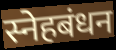
स्नेहबंधन